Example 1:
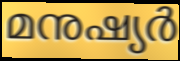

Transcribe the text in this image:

മനുഷ്യർ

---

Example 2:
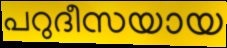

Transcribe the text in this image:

പറുദീസയായ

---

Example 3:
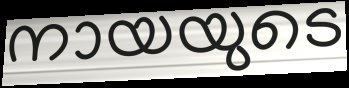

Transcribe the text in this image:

നായയുടെ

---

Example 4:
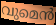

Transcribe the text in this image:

വുമെൻ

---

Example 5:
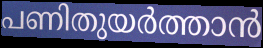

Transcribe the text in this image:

പണിതുയർത്താൻ